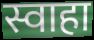
स्वाहा